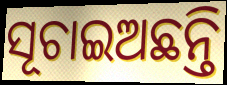
ସୂଚାଇଅଛନ୍ତି